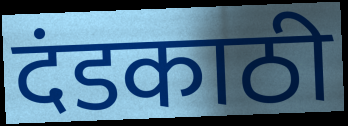
दंडकाठी